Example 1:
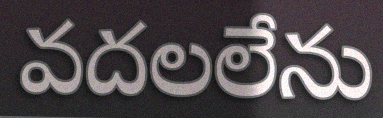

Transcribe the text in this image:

వదలలేను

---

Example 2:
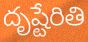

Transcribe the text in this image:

దృష్టేరితి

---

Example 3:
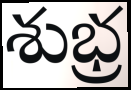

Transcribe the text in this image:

శుభ్ర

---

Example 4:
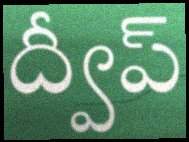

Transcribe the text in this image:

ద్వీప్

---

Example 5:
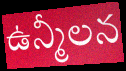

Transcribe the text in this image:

ఉన్మీలన